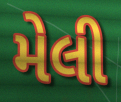
મેલી